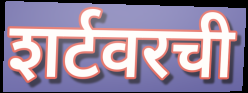
शर्टवरची